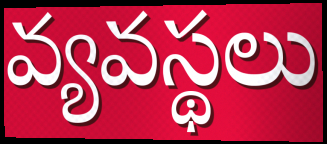
వ్యవస్థలు